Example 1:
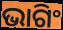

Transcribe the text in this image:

ଭାଗିଂ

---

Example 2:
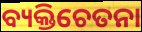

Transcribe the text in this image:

ବ୍ୟକ୍ତିଚେତନା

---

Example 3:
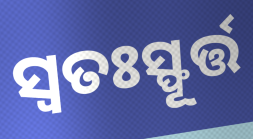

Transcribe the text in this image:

ସ୍ୱତଃସ୍ଫୂର୍ତ୍ତ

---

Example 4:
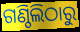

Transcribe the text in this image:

ଗଣ୍ଠିଲିଠାରୁ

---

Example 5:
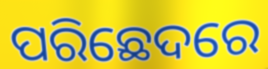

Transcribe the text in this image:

ପରିଛେଦରେ